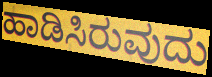
ಹಾಡಿಸಿರುವುದು